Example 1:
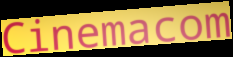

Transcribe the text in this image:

Cinemacom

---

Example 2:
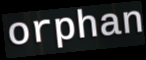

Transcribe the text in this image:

orphan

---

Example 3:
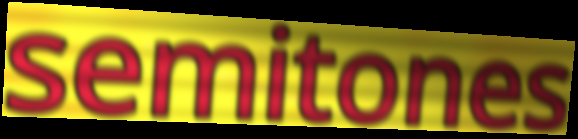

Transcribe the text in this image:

semitones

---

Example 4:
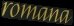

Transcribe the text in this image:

romana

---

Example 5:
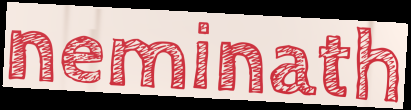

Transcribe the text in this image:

neminath